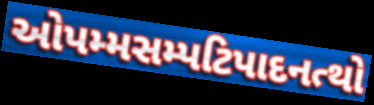
ઓપમ્મસમ્પટિપાદનત્થો